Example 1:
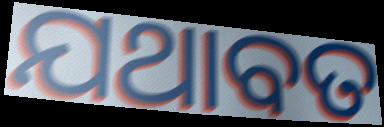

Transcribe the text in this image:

ଯଥାବତ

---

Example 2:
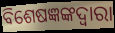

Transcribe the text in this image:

ବିଶେଷଜ୍ଞଙ୍କଦ୍ୱାରା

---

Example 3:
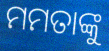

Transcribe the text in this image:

ମମତାଙ୍କୁ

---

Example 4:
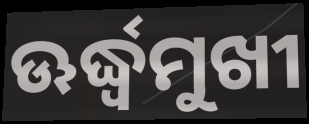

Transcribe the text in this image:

ଊର୍ଦ୍ଧ୍ବମୁଖୀ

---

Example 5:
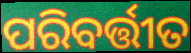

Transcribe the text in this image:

ପରିବର୍ତ୍ତୀତ